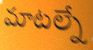
మాటల్నే